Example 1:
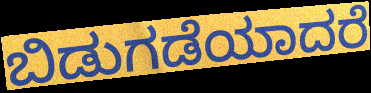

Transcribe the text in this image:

ಬಿಡುಗಡೆಯಾದರೆ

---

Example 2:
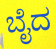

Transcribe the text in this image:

ಬೈದ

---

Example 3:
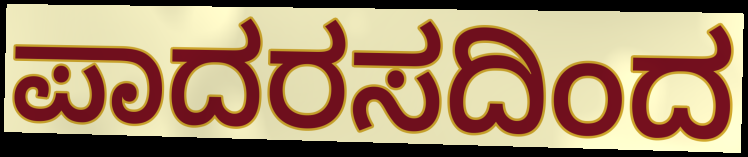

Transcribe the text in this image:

ಪಾದರಸದಿಂದ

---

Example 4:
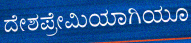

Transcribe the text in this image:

ದೇಶಪ್ರೇಮಿಯಾಗಿಯೂ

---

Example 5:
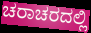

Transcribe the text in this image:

ಚರಾಚರದಲ್ಲಿ